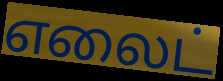
எலைட்